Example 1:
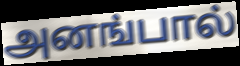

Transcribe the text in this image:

அனங்பால்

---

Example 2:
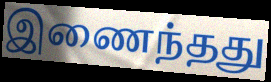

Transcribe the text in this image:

இணைந்தது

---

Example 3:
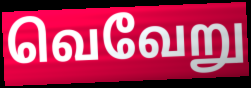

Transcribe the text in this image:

வெவேறு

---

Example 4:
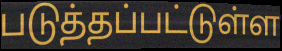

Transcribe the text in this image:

படுத்தப்பட்டுள்ள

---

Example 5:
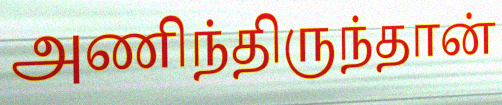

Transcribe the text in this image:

அணிந்திருந்தான்